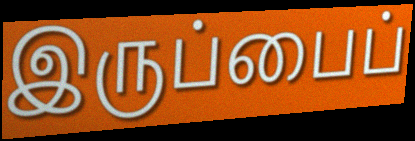
இருப்பைப்